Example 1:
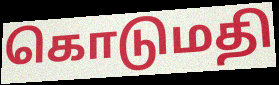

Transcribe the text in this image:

கொடுமதி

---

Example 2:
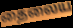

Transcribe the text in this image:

தைலைய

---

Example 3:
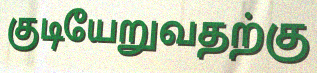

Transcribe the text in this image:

குடியேறுவதற்கு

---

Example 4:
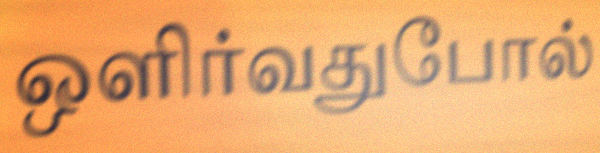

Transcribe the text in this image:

ஒளிர்வதுபோல்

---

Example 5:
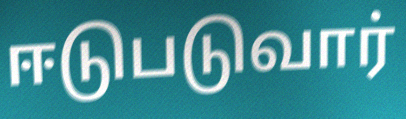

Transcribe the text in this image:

ஈடுபடுவார்